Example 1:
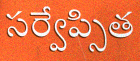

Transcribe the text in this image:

సర్వేప్సిత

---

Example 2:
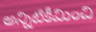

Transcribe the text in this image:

అన్నిటికీమించి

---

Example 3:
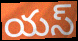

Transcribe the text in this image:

యస్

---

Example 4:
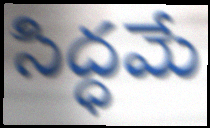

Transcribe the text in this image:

సిద్ధమే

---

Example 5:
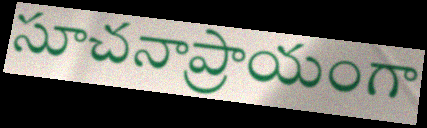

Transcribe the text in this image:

సూచనాప్రాయంగా